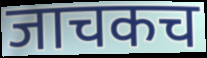
जाचकच